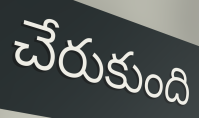
చేరుకుంది